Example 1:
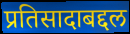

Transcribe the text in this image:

प्रतिसादाबद्दल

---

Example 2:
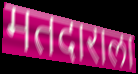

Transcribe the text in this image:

मतदाराला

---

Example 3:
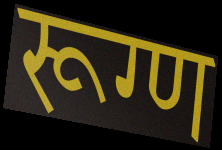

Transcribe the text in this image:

रूग्ण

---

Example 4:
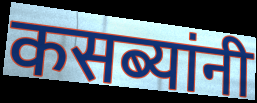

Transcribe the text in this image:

कसब्यांनी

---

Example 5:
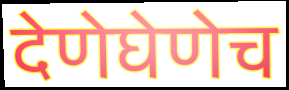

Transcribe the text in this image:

देणेघेणेच